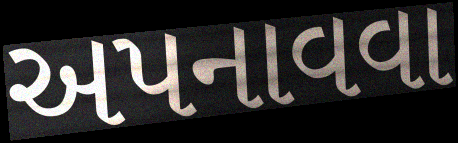
અપનાવવા